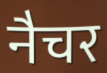
नैचर